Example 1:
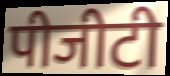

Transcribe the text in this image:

पीजीटी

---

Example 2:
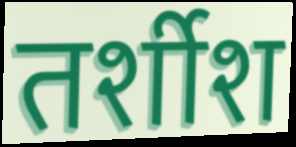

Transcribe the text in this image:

तर्शीश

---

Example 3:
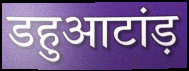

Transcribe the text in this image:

डहुआटांड़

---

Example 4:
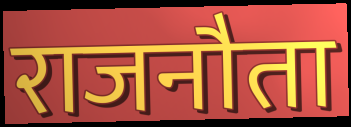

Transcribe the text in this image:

राजनौता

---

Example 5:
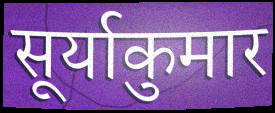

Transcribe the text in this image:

सूर्याकुमार